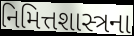
નિમિત્તશાસ્ત્રના